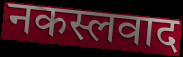
नकस्लवाद